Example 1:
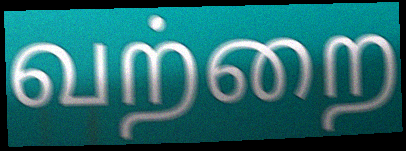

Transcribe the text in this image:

வற்றை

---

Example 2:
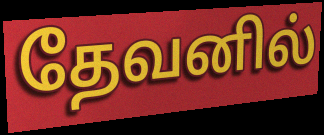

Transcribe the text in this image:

தேவனில்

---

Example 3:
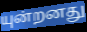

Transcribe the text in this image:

யுன்றனது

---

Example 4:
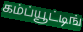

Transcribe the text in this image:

கம்ப்யூட்டிங்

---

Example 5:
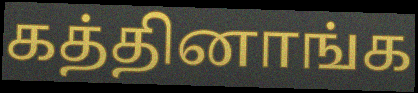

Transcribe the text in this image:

கத்தினாங்க